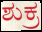
ಶುಕ್ರ